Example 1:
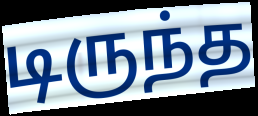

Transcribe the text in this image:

டிருந்த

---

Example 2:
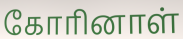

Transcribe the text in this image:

கோரினாள்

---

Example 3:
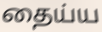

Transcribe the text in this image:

தைய்ய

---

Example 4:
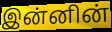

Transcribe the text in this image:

இன்னின்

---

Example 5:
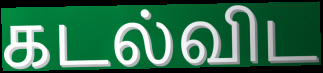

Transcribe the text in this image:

கடல்விட